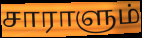
சாராளும்